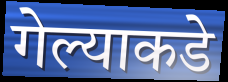
गेल्याकडे